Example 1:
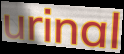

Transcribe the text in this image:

urinal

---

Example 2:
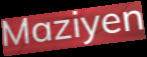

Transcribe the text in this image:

Maziyen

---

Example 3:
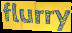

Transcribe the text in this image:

flurry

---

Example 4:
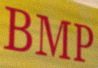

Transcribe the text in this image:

BMP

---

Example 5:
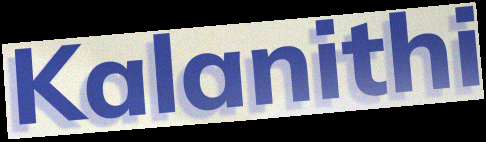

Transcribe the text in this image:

Kalanithi